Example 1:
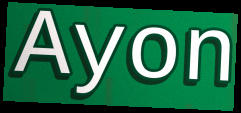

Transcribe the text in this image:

Ayon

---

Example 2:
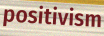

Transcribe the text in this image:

positivism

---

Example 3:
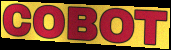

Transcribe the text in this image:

COBOT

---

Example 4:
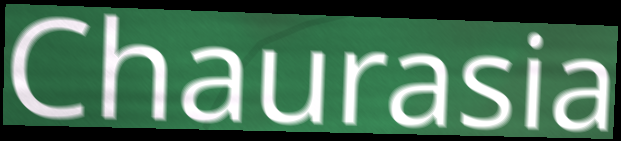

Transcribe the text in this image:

Chaurasia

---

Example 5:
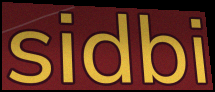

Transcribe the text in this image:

sidbi